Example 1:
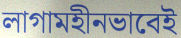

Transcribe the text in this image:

লাগামহীনভাবেই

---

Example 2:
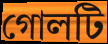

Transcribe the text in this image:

গোলটি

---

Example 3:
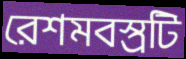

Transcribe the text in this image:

রেশমবস্ত্রটি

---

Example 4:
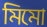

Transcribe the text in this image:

মিমো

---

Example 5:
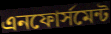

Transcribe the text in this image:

এনফোর্সমেন্ট